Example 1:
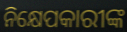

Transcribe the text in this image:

ନିକ୍ଷେପକାରୀଙ୍କ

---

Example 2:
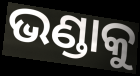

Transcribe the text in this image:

ଭଣ୍ଡାକୁ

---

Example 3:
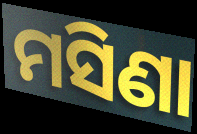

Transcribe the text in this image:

ମସିଣା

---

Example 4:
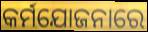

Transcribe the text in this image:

କର୍ମଯୋଜନାରେ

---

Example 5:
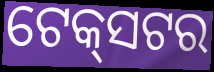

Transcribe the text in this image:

ଟେକ୍‌ସଟର